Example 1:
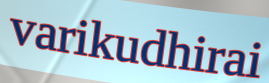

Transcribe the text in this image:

varikudhirai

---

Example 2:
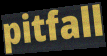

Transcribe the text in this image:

pitfall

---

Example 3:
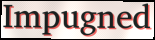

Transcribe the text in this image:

Impugned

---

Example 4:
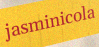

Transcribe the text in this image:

jasminicola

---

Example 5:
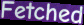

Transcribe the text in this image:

Fetched